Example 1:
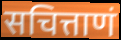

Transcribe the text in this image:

सचित्ताणं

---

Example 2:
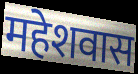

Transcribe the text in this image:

महेशवास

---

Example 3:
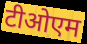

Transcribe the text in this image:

टीओएम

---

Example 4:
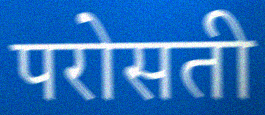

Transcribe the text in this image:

परोसती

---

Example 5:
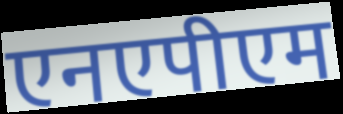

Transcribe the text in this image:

एनएपीएम